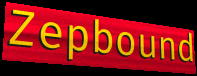
Zepbound